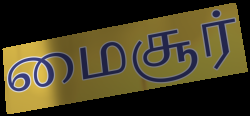
மைசூர்